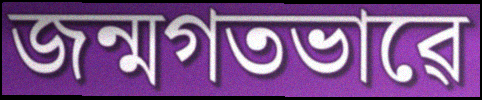
জন্মগতভাৱে